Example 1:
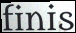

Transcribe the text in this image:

finis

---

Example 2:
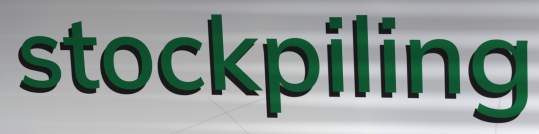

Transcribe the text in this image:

stockpiling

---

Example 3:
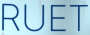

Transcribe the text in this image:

RUET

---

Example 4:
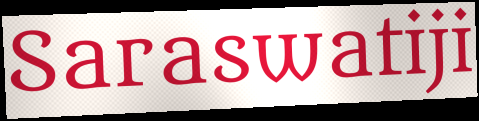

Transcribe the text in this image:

Saraswatiji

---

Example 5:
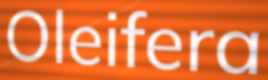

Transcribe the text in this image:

Oleifera